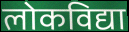
लोकविद्या